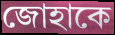
জোহাকে